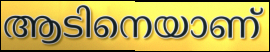
ആടിനെയാണ്